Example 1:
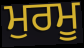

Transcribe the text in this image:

ਮੁਰਮੂ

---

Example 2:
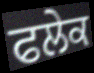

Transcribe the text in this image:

ਫਲੇਕ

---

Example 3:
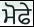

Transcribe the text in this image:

ਮੋਫੇ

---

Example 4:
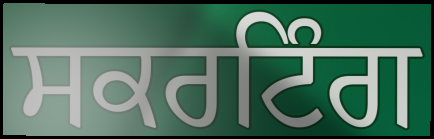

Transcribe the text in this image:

ਸਕਰਟਿੰਗ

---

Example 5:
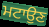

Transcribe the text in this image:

ਮਟਾਉਣ